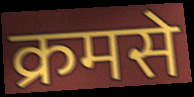
क्रमसे